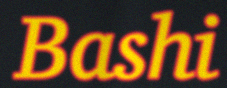
Bashi